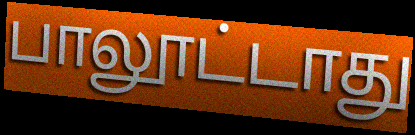
பாலூட்டாது